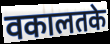
वकालतके